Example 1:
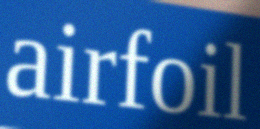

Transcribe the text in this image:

airfoil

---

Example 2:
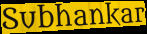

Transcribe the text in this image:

Subhankar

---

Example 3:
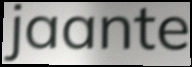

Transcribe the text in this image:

jaante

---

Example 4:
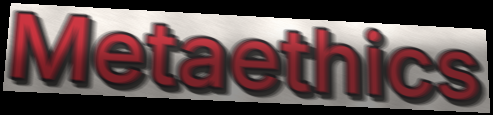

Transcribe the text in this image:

Metaethics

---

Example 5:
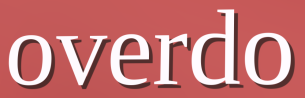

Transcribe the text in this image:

overdo